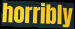
horribly